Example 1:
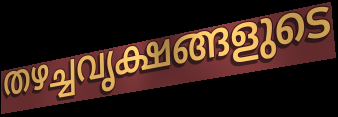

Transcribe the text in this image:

തഴച്ചവൃക്ഷങ്ങളുടെ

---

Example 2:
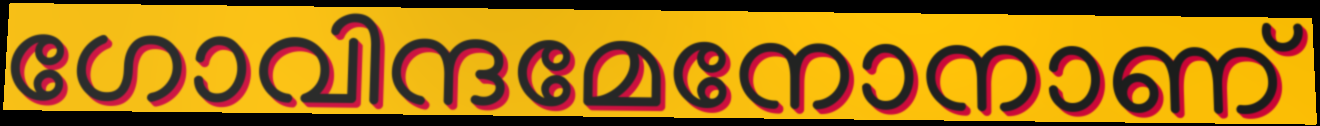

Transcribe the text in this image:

ഗോവിന്ദമേനോനാണ്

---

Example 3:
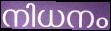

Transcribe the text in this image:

നിധനം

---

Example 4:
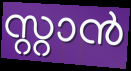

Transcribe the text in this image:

സ്റ്റാൻ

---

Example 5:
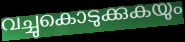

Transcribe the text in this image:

വച്ചുകൊടുക്കുകയും